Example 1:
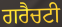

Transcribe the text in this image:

ਗਰੈਚਟੀ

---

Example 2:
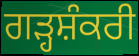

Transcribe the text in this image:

ਗੜ੍ਹਸ਼ੰਕਰੀ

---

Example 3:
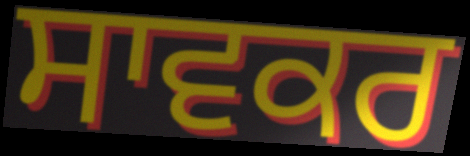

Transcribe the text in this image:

ਸਾਵਕਰ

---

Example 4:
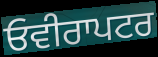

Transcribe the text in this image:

ਓਵੀਰਾਪਟਰ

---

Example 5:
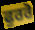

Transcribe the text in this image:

ਫੁਰਰੋ